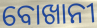
ବୋଖାନୀ